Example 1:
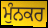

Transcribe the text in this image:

ਮੁੰਨਕਰ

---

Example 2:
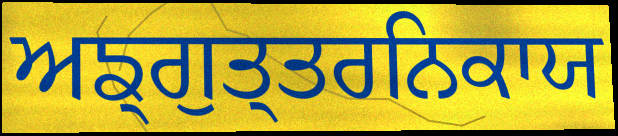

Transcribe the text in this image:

ਅਙ੍ਗੁਤ੍ਤਰਨਿਕਾਯ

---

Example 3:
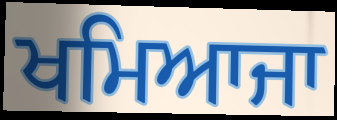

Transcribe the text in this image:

ਖਮਿਆਜਾ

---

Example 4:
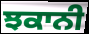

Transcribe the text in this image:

ਝਕਾਨੀ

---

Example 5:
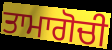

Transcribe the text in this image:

ਤਾਮਾਗੋਚੀ